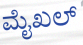
ಮೈಖಲ್